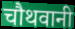
चौथवानी